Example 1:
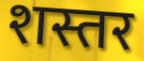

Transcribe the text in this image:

शस्तर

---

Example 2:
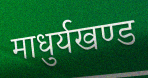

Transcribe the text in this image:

माधुर्यखण्ड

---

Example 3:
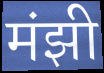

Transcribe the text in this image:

मंझी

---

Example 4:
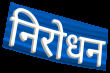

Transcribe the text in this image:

निरोधन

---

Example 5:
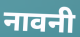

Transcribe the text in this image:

नावनी